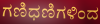
ಗಣಿಧಣಿಗಳಿಂದ